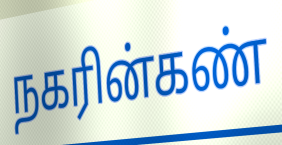
நகரின்கண்